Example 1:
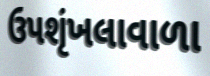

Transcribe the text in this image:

ઉપશૃંખલાવાળા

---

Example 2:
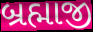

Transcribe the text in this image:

બ્રહ્માજી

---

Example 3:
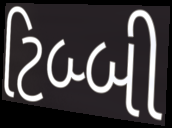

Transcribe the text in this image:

ટિબ્બી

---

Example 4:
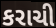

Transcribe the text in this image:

કરાચી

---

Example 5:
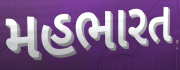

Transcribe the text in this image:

મહભારત